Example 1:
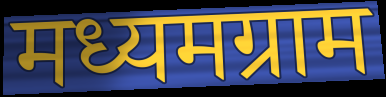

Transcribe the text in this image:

मध्यमग्राम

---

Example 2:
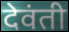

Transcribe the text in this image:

देवंती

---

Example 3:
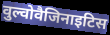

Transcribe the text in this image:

वुल्वोवैजिनाइटिस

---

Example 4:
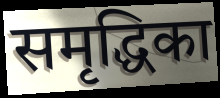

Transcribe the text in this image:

समृद्धिका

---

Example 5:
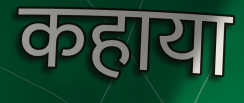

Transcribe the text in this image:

कहाया